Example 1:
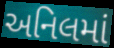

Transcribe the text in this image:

અનિલમાં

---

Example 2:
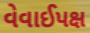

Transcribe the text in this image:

વેવાઈપક્ષ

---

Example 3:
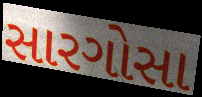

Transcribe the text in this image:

સારગોસા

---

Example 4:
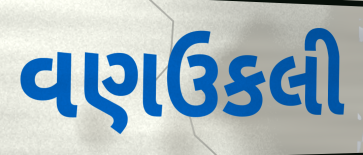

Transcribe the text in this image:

વણઉકલી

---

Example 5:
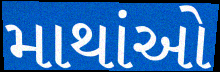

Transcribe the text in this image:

માથાંઓ